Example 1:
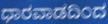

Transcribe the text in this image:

ಧಾರವಾಡದಿಂದ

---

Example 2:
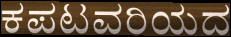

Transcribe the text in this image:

ಕಪಟವರಿಯದ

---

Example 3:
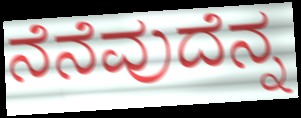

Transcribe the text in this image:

ನೆನೆವುದೆನ್ನ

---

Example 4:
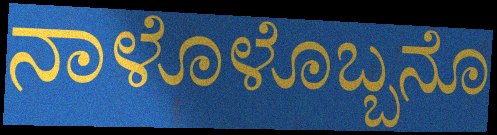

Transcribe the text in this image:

ನಾಳೊಳೊಬ್ಬನೊ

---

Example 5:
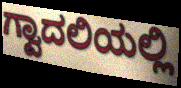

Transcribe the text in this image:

ಗ್ವಾದಲಿಯಲ್ಲಿ